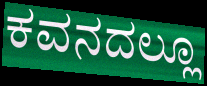
ಕವನದಲ್ಲೂ